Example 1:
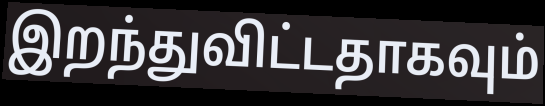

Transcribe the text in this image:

இறந்துவிட்டதாகவும்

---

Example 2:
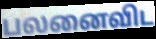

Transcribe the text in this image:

பலனைவிட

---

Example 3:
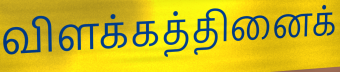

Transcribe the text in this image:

விளக்கத்தினைக்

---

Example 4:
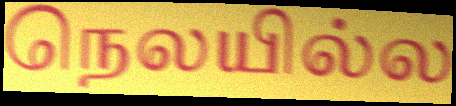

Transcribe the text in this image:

நெலயில்ல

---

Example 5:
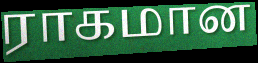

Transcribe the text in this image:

ராகமான